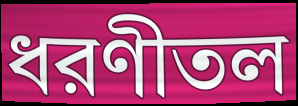
ধরণীতল